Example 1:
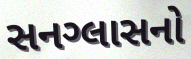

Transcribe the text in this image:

સનગ્લાસનો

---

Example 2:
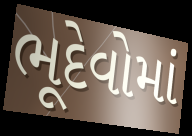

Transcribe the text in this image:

ભૂદેવોમાં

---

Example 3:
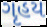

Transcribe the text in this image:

ગૃહય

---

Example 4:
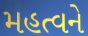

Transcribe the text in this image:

મહત્વને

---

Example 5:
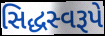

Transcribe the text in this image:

સિદ્ધસ્વરૂપે